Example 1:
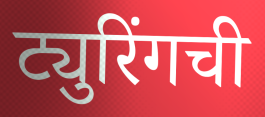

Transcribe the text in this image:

ट्युरिंगची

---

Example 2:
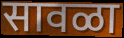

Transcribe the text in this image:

सावळा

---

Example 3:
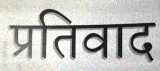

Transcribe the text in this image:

प्रतिवाद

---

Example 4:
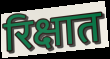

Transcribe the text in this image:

रिक्षात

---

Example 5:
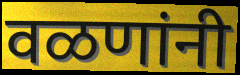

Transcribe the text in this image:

वळणांनी